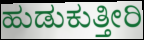
ಹುಡುಕುತ್ತೀರಿ